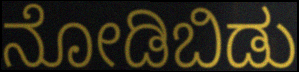
ನೋಡಿಬಿಡು